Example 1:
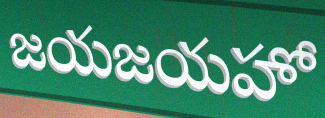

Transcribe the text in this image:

జయజయహో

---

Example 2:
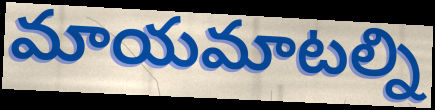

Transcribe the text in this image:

మాయమాటల్ని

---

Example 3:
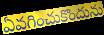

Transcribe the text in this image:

ఏవగించుకొందును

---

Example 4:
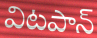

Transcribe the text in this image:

విటపాన్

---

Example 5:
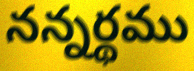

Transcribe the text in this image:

నన్నర్థము